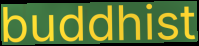
buddhist